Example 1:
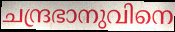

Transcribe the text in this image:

ചന്ദ്രഭാനുവിനെ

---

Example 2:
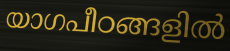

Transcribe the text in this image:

യാഗപീഠങ്ങളിൽ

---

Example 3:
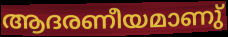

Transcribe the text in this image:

ആദരണീയമാണു്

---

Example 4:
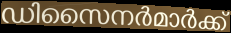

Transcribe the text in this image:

ഡിസൈനർമാർക്ക്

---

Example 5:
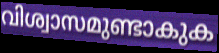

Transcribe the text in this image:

വിശ്വാസമുണ്ടാകുക